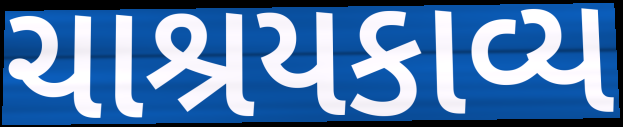
ચાશ્રયકાવ્ય